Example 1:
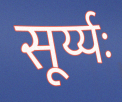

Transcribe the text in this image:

सूर्य्यः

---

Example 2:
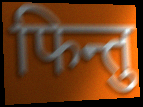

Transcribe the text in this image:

फिन्तु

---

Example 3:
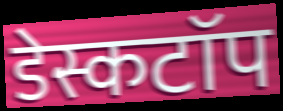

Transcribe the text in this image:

डेस्‍कटॉप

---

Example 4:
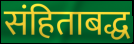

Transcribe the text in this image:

संहिताबद्ध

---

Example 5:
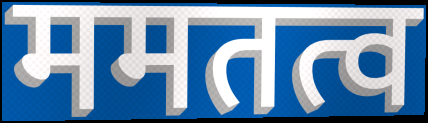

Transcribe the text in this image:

ममतत्व